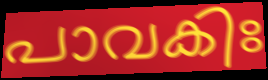
പാവകിഃ